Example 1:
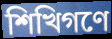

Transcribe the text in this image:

শিখিগণে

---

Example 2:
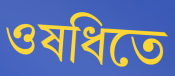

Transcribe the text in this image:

ওষধিতে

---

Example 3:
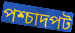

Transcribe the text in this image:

পশ্চাদপট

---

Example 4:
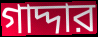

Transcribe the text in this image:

গাদ্দার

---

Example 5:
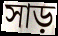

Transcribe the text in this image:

সাড়